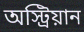
অস্ট্রিয়ান